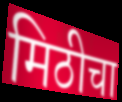
मिठीचा